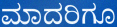
ಮಾದರಿಗೂ